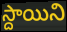
స్దాయిని